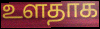
உளதாக